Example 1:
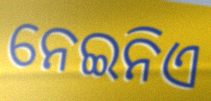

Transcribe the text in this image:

ନେଇନିଏ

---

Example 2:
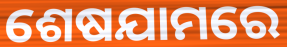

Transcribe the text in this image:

ଶେଷଯାମରେ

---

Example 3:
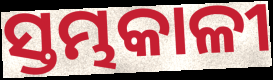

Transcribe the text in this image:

ସ୍ତମ୍ଭକାଳୀ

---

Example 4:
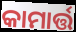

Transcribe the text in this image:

କାମାର୍ତ୍ତ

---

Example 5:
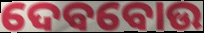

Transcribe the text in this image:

ଦେବବୋଉ